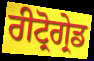
ਰੀਟ੍ਰੋਗ੍ਰੇਡ